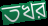
তখর